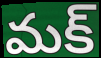
మక్